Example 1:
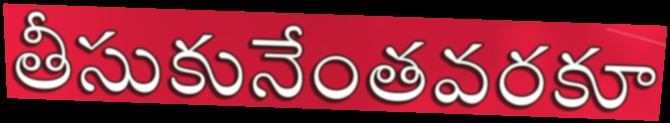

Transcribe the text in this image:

తీసుకునేంతవరకూ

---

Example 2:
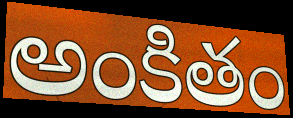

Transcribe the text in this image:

అంకితం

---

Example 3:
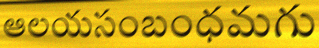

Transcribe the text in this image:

ఆలయసంబంధమగు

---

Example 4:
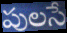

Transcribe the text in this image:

పులసే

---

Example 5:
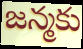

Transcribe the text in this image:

జన్మకు